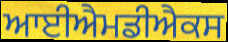
ਆਈਐਮਡੀਐਕਸ